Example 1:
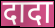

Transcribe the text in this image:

दादा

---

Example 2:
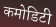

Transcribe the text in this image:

कमोडिटी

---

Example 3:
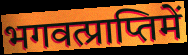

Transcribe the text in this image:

भगवत्प्राप्तिमें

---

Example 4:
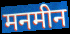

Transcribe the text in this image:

मनमीन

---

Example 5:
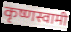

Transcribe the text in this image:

कृष्णस्वामी